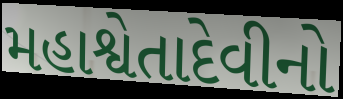
મહાશ્વેતાદેવીનો